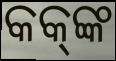
କକ୍‌ଙ୍କ